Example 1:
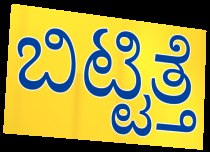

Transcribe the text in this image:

ಬಿಟ್ಟಿತ್ತೆ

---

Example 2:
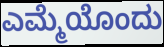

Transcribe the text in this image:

ಎಮ್ಮೆಯೊಂದು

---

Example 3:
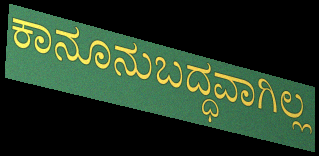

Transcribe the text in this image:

ಕಾನೂನುಬದ್ಧವಾಗಿಲ್ಲ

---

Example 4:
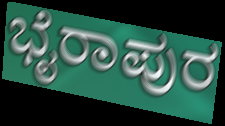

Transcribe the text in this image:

ಭೈರಾಪುರ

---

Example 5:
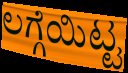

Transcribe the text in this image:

ಲಗ್ಗೆಯಿಟ್ಟ